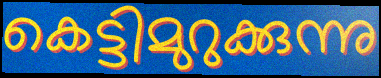
കെട്ടിമുറുക്കുന്നു